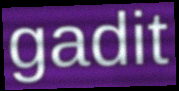
gadit